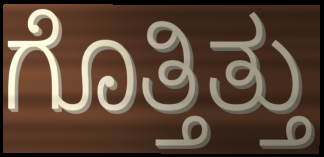
ಗೊತ್ತಿತ್ತು